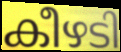
കീഴടി